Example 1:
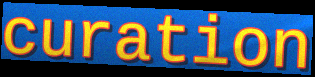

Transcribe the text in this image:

curation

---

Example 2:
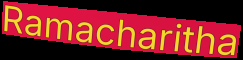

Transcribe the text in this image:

Ramacharitha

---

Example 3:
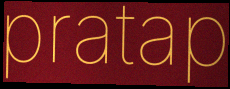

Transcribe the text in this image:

pratap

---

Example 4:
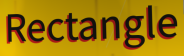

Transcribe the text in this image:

Rectangle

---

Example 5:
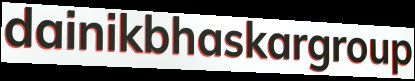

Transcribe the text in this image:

dainikbhaskargroup